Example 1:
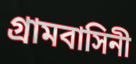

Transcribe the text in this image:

গ্রামবাসিনী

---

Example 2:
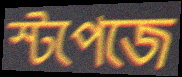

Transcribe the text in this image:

স্টপেজে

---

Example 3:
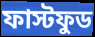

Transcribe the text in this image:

ফাস্টফুড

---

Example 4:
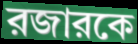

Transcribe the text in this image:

রজারকে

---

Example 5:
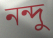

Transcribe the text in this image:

নন্দু